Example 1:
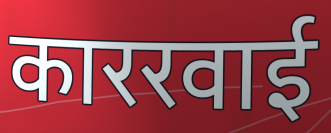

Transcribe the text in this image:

काररवाई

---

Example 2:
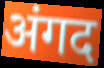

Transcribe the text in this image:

अंगद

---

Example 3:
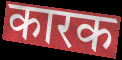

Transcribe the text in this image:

कारक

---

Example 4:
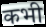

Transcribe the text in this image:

कभी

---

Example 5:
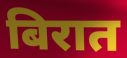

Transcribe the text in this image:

बिरात